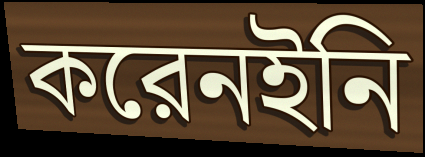
করেনইনি